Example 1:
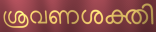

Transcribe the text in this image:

ശ്രവണശക്തി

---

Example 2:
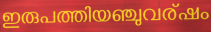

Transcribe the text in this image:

ഇരുപത്തിയഞ്ചുവര്ഷം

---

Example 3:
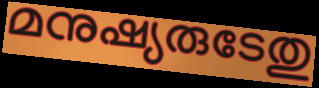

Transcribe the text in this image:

മനുഷ്യരുടേതു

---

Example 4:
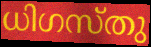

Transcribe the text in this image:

ധിഗസ്തു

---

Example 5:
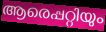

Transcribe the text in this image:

ആരെപ്പറ്റിയും